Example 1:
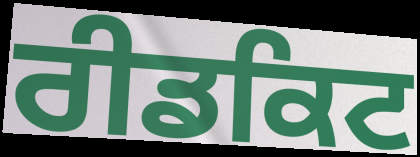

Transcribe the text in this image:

ਰੀਡਕਿਟ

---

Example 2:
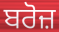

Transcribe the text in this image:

ਬਰੋਜ਼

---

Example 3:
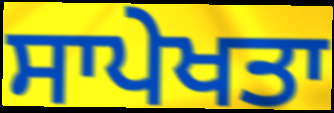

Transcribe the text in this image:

ਸਾਪੇਖਤਾ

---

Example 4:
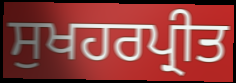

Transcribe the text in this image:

ਸੁਖਹਰਪ੍ਰੀਤ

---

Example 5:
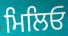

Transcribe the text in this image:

ਮਿਲਿਓ